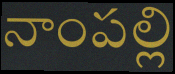
నాంపల్లి